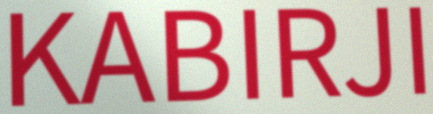
KABIRJI